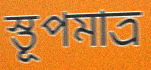
স্তূপমাত্র